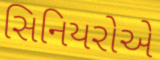
સિનિયરોએ